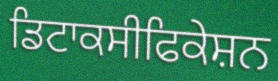
ਡਿਟਾਕਸੀਫਿਕੇਸ਼ਨ